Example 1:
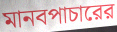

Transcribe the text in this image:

মানবপাচারের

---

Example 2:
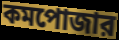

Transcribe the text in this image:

কমপোজার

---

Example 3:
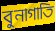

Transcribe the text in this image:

বুনাগাতি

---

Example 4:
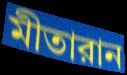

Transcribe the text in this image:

মীতারান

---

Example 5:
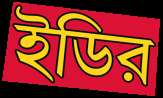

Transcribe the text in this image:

ইডির